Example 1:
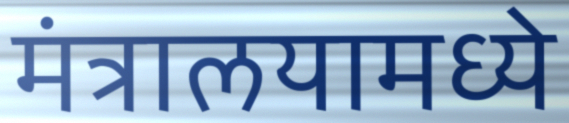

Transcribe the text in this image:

मंत्रालयामध्ये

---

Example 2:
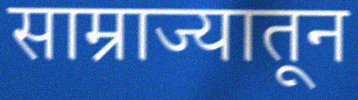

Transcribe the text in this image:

साम्राज्यातून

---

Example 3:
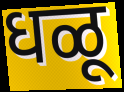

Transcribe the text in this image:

धळू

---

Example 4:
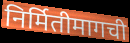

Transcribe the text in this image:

निर्मितीमागची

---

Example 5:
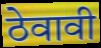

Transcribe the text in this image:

ठेवावी